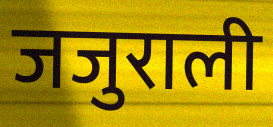
जजुराली